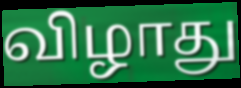
விழாது